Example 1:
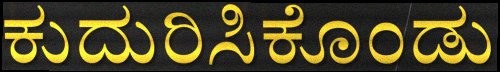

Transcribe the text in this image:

ಕುದುರಿಸಿಕೊಂಡು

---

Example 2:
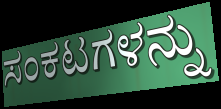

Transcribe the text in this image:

ಸಂಕಟಗಳನ್ನು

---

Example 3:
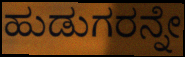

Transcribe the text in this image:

ಹುಡುಗರನ್ನೇ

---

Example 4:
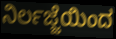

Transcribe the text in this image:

ನಿರ್ಲಜ್ಜೆಯಿಂದ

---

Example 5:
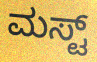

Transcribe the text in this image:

ಮಸ್ಟ್